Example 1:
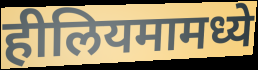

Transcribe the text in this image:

हीलियमामध्ये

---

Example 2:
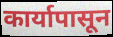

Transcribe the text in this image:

कार्यापासून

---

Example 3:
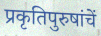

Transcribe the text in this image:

प्रकृतिपुरुषांचें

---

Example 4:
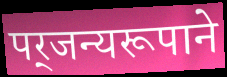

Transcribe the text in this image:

पर्जन्यरूपाने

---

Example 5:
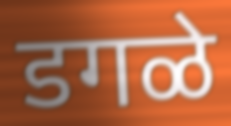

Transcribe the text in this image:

डगळे